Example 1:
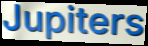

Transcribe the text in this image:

Jupiters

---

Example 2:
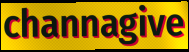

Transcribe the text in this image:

channagive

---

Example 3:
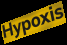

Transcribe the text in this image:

Hypoxis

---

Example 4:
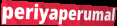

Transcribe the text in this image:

periyaperumal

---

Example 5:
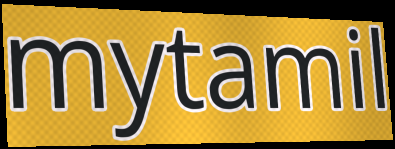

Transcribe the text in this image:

mytamil